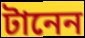
টানেন